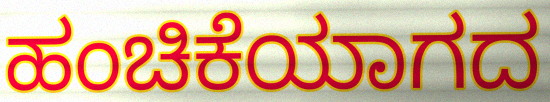
ಹಂಚಿಕೆಯಾಗದ